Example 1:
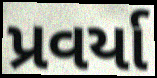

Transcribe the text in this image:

પ્રવર્યા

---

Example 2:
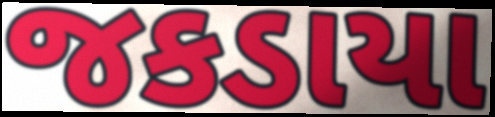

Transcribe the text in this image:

જકડાયા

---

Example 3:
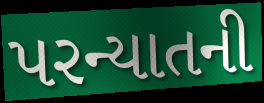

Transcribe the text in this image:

પરન્યાતની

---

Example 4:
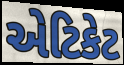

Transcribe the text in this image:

એટિકેટ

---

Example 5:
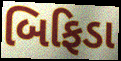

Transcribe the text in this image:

બિફિડા